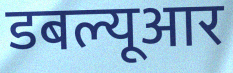
डबल्यूआर